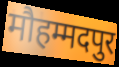
मौहम्मदपुर